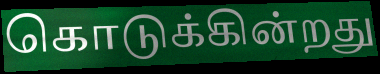
கொடுக்கின்றது